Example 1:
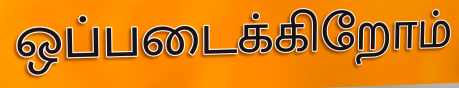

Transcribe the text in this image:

ஒப்படைக்கிறோம்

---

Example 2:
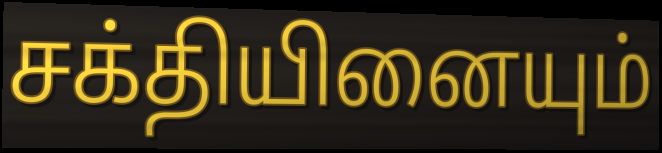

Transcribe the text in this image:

சக்தியினையும்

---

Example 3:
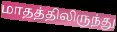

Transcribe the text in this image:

மாதத்திலிருந்து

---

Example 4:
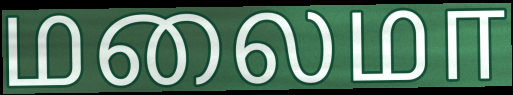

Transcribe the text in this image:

மலைமா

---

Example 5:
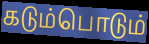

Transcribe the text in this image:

கடும்பொடும்